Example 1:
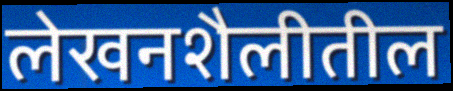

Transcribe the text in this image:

लेखनशैलीतील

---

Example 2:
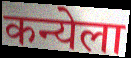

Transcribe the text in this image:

कन्येला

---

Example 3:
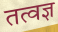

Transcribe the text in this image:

तत्वज्ञ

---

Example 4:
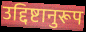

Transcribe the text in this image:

उद्दिष्टानुरूप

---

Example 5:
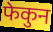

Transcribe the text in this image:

फेकुन